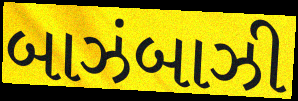
બાઝંબાઝી